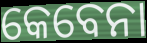
କେବେନା